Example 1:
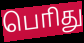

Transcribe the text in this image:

பெரிது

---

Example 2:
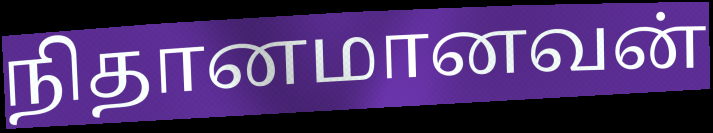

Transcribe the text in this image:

நிதானமானவன்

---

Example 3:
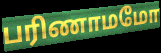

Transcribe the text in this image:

பரிணாமமோ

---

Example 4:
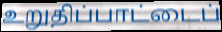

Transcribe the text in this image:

உறுதிப்பாட்டைப்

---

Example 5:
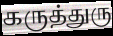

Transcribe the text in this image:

கருத்துரு